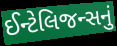
ઈન્ટેલિજન્સનું